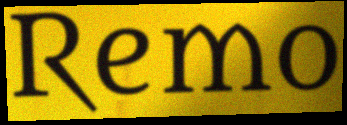
Remo